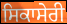
ਸਿਕਾਸੇਰੀ